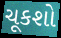
ચૂકશો